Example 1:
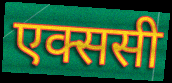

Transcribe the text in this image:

एक्ससी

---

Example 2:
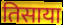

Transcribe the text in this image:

तिसाया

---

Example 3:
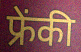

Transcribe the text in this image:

फ्रेंकी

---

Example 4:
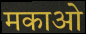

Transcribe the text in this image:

मकाओ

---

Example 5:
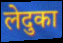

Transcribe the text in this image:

लेदुका